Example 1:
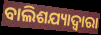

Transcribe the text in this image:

ବାଲିଶଯ୍ୟାଦ୍ଵାରା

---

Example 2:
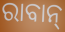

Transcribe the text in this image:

ରାବାନ୍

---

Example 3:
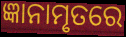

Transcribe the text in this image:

ଜ୍ଞାନାମୃତରେ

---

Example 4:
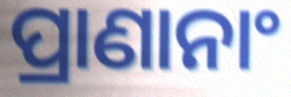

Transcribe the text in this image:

ପ୍ରାଣାନାଂ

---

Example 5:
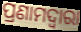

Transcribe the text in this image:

ପ୍ରଣାମଦ୍ୱାରା